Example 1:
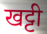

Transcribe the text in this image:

खट्टी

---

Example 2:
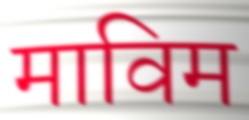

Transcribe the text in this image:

माविम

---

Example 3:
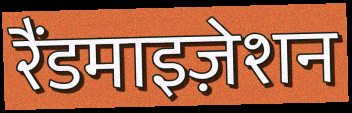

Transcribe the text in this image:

रैंडमाइज़ेशन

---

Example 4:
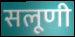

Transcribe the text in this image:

सलूणी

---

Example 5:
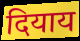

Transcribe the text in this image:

दियाय